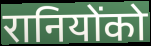
रानियोंको